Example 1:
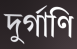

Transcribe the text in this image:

দুর্গাণি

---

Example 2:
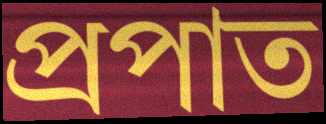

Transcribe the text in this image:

প্রপাত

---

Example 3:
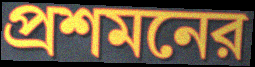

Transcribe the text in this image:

প্রশমনের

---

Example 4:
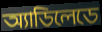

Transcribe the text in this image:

অ্যাডিলেডে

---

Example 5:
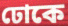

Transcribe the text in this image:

ঢোকে